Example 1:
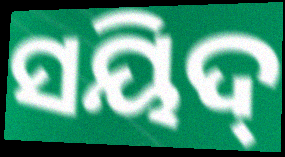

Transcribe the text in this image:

ସୟିଦ୍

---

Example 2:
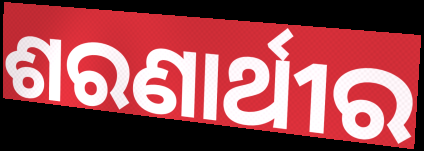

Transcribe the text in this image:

ଶରଣାର୍ଥୀର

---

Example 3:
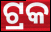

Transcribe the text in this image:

ଟ୍ରକ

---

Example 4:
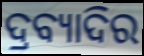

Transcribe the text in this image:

ଦ୍ରବ୍ୟାଦିର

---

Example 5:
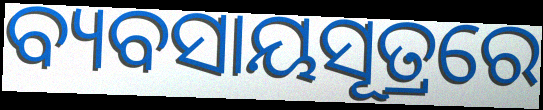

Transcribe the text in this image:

ବ୍ୟବସାୟସୂତ୍ରରେ